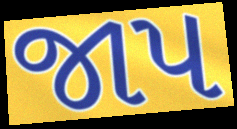
જાપ